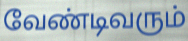
வேண்டிவரும்